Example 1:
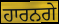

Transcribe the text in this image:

ਹਾਰਨਗੇ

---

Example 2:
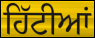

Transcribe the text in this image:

ਹਿੱਟੀਆਂ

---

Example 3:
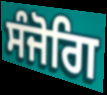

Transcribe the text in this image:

ਸੰਜੋਗਿ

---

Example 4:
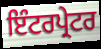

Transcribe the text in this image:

ਇੰਟਰਪ੍ਰੇਟਰ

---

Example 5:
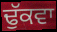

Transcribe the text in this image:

ਢੁੱਕਵਾ